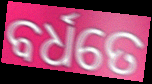
ବର୍ଧତେ